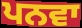
ਪਨਵਾ